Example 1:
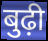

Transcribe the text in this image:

बुढ़ी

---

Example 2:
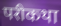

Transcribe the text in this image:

परीकथा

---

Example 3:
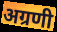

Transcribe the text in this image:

अग्रणी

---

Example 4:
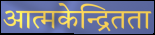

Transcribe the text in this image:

आत्मकेन्द्रितता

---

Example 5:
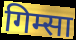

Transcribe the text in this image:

गिम्सा